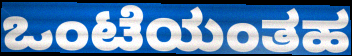
ಒಂಟೆಯಂತಹ